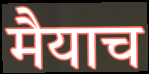
मैयाच